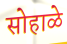
सोहाळे